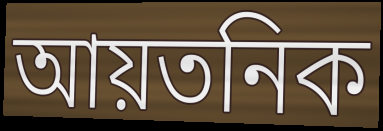
আয়তনিক